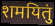
शमयितुं